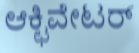
ಆಕ್ಟಿವೇಟರ್